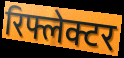
रिफ्लेक्टर